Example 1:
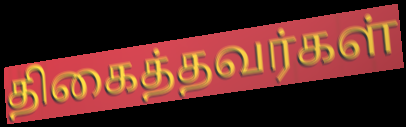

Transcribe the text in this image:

திகைத்தவர்கள்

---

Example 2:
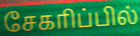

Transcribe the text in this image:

சேகரிப்பில்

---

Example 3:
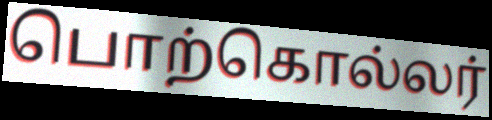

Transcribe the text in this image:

பொற்கொல்லர்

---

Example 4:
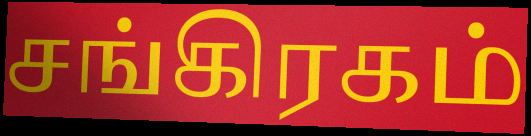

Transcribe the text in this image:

சங்கிரகம்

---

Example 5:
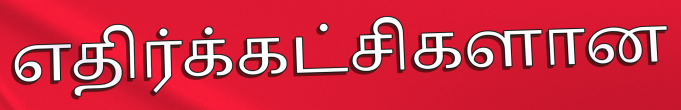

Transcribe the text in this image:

எதிர்க்கட்சிகளான